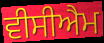
ਵੀਸੀਐਮ